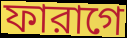
ফারাগে